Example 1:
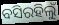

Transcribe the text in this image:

ବସିରହିଲୁଁ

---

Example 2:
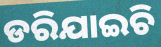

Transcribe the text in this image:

ଡରିଯାଇଚି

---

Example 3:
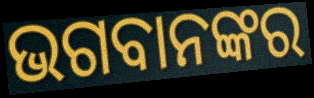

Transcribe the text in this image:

ଭଗବାନଙ୍କର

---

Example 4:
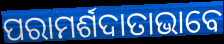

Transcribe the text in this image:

ପରାମର୍ଶଦାତାଭାବେ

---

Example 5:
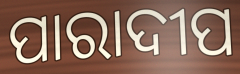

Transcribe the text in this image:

ପାରାଦୀପ